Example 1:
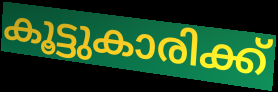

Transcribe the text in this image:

കൂട്ടുകാരിക്ക്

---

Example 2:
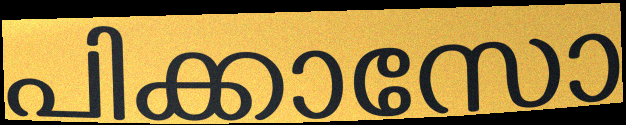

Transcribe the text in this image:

പിക്കാസോ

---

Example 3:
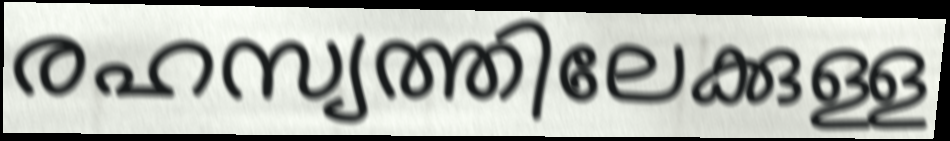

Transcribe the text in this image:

രഹസ്യത്തിലേക്കുള്ള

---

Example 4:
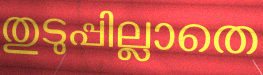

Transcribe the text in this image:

തുടുപ്പില്ലാതെ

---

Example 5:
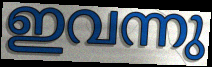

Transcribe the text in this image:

ഇവന്നു